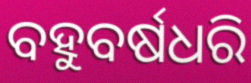
ବହୁବର୍ଷଧରି